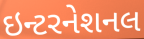
ઇન્ટરનેશનલ